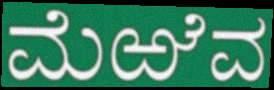
ಮೆಱೆವ